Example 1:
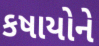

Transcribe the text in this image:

કષાયોને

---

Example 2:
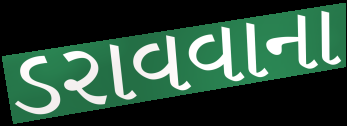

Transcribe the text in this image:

ડરાવવાના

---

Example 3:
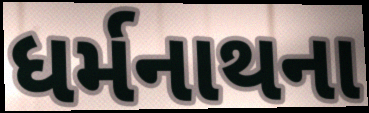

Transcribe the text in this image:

ધર્મનાથના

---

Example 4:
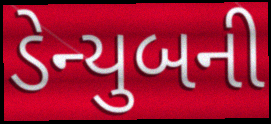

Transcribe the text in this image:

ડેન્યુબની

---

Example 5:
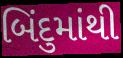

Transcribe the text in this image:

બિંદુમાંથી